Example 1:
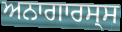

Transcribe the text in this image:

ਅਨਾਗਾਰਸ੍ਸ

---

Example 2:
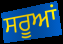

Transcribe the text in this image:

ਸਰੂਆਂ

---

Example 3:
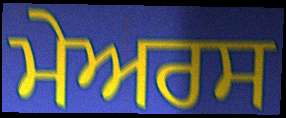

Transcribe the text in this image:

ਮੇਅਰਸ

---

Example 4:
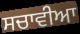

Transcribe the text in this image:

ਸਚਾਵੀਆ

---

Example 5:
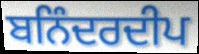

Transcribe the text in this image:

ਬਨਿੰਦਰਦੀਪ